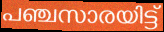
പഞ്ചസാരയിട്ട്